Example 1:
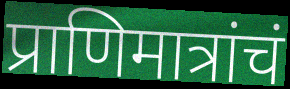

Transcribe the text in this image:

प्राणिमात्रांचं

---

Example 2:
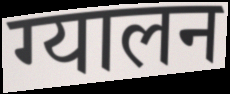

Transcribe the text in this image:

ग्यालन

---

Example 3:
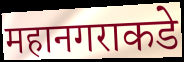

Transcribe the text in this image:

महानगराकडे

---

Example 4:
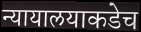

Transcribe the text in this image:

न्यायालयाकडेच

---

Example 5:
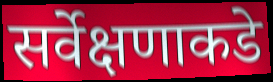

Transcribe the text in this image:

सर्वेक्षणाकडे